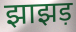
झाझड़